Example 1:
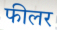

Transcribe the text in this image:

फीलर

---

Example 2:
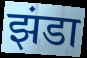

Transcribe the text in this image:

झंडा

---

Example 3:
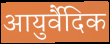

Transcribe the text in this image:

आयुर्वैदिक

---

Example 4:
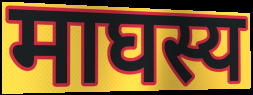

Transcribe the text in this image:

माघस्य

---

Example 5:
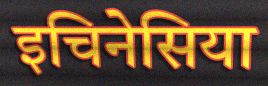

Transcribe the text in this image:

इचिनेसिया